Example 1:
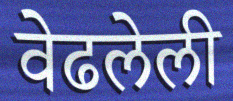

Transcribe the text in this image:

वेढलेली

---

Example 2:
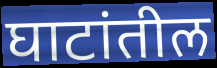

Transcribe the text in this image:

घाटांतील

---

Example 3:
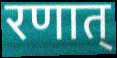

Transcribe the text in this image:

रणात्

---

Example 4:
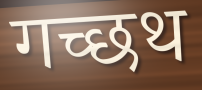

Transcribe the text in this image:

गच्छथ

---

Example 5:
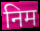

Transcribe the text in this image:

निम